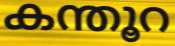
കന്തൂറ